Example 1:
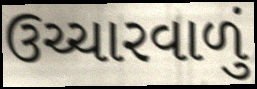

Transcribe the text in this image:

ઉચ્ચારવાળું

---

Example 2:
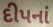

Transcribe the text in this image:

દીપનાં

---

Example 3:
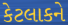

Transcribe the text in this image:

કેટલાકને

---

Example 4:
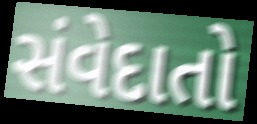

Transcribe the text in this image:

સંવેદાતો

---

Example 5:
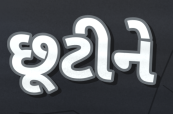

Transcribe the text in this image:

છૂટીને